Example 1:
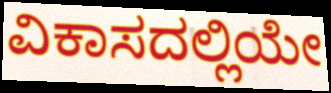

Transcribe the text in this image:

ವಿಕಾಸದಲ್ಲಿಯೇ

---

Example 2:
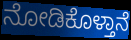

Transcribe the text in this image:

ನೋಡಿಕೊಳ್ತಾನೆ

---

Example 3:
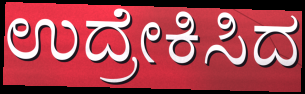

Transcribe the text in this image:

ಉದ್ರೇಕಿಸಿದ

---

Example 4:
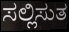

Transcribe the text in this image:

ಸಲ್ಲಿಸುತ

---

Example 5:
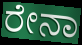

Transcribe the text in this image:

ರೇನಾ